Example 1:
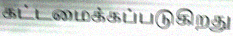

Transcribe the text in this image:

கட்டமைக்கப்படுகிறது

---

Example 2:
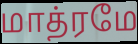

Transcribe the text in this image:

மாத்ரமே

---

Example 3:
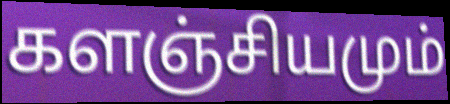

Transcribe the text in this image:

களஞ்சியமும்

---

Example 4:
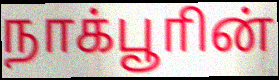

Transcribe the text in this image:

நாக்பூரின்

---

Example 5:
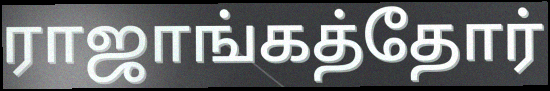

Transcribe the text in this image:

ராஜாங்கத்தோர்